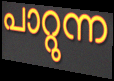
പാറ്റുന്ന